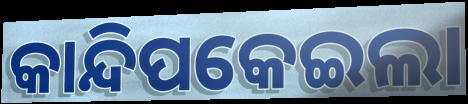
କାନ୍ଦିପକେଇଲା